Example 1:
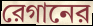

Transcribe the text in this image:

রেগানের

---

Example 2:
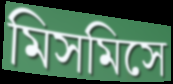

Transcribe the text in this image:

মিসমিসে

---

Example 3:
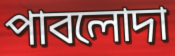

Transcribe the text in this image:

পাবলোদা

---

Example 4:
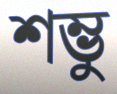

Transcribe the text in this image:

শম্ভু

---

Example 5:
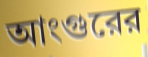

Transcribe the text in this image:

আংগুরের